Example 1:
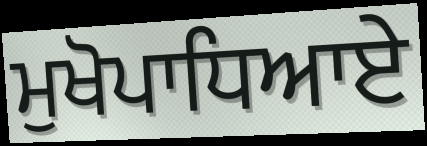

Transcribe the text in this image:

ਮੁਖੋਪਾਧਿਆਏ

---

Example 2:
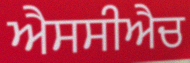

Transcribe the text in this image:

ਐਸਸੀਐਚ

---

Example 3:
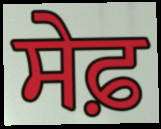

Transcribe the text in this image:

ਸੇਫ਼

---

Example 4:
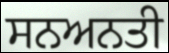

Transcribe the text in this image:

ਸਨਅਨਤੀ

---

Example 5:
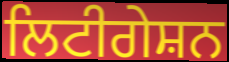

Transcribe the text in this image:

ਲਿਟੀਗੇਸ਼ਨ